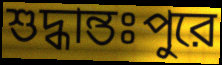
শুদ্ধান্তঃপুরে